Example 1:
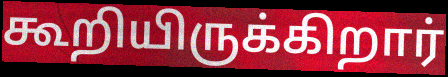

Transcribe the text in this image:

கூறியிருக்கிறார்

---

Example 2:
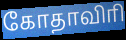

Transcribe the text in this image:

கோதாவிரி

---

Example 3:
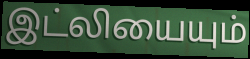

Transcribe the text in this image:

இட்லியையும்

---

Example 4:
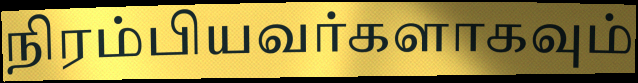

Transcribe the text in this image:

நிரம்பியவர்களாகவும்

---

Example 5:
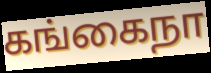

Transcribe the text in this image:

கங்கைநா